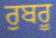
ਰੁਬਰੂ